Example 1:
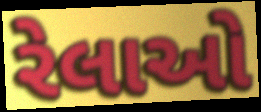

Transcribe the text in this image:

રેલાઓ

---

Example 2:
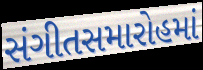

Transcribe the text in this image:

સંગીતસમારોહમાં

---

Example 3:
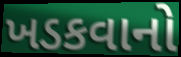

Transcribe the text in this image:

ખડકવાનો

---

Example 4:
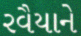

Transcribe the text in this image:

રવૈયાને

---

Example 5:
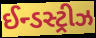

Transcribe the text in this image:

ઈન્ડસ્ટ્રીઝ